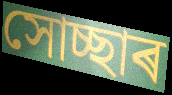
সোচ্ছাৰ